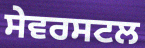
ਸੇਵਰਸਟਲ